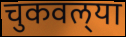
चुकवल्या